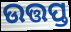
ଉତ୍ତପ୍ତ